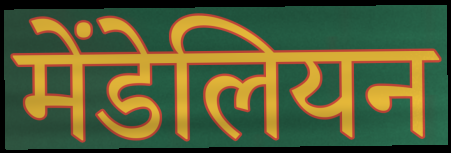
मेंडेलियन